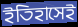
ইতিহাসেই